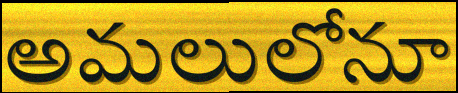
అమలులోనూ